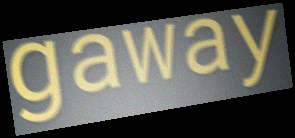
gaway